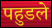
पहुडले